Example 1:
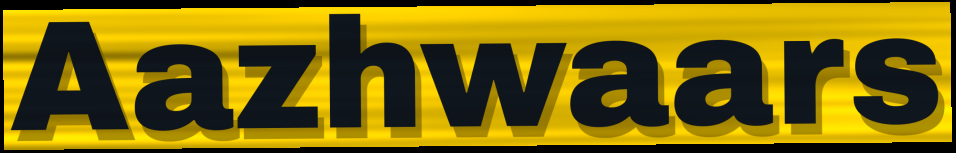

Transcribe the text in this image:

Aazhwaars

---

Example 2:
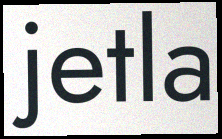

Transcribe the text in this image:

jetla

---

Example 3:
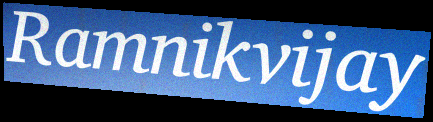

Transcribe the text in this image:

Ramnikvijay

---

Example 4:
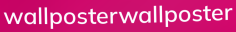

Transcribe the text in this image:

wallposterwallposter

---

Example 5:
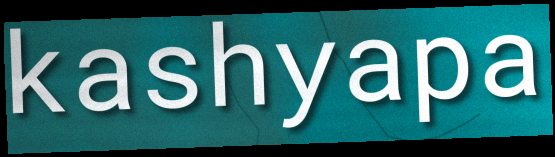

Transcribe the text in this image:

kashyapa